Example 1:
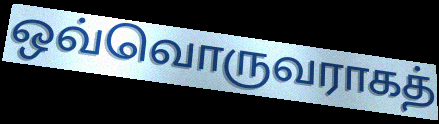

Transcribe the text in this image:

ஒவ்வொருவராகத்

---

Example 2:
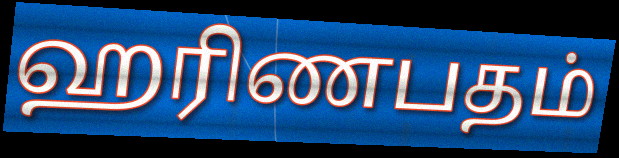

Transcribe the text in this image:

ஹரிணபதம்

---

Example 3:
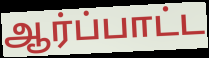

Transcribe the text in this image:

ஆர்ப்பாட்ட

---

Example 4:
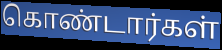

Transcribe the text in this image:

கொண்டார்கள்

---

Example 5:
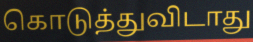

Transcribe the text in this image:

கொடுத்துவிடாது